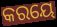
କରୟେ